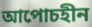
আপোচহীন